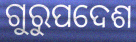
ଗୁରୁପଦେଶ